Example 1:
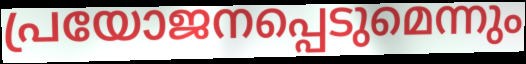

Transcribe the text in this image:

പ്രയോജനപ്പെടുമെന്നും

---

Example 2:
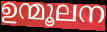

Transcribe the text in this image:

ഉന്മൂലന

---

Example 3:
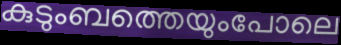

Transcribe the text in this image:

കുടുംബത്തെയുംപോലെ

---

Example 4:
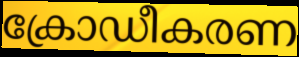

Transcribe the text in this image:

ക്രോഡീകരണ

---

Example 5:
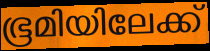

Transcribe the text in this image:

ഭൂമിയിലേക്ക്